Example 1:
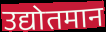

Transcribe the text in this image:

उद्योतमान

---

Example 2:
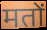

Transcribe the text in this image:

मतों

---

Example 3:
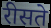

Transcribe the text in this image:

रीसते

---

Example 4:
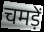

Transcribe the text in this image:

चमड़ें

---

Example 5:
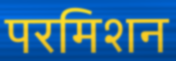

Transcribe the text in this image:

परमिशन